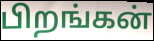
பிறங்கன்